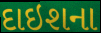
દાઇશના